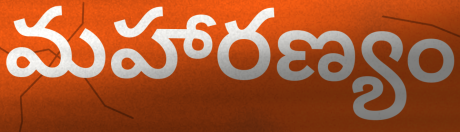
మహారణ్యం